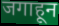
जगाहून